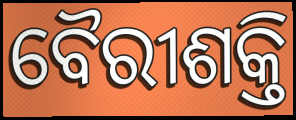
ବୈରୀଶକ୍ତି